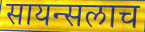
सायन्सलाच